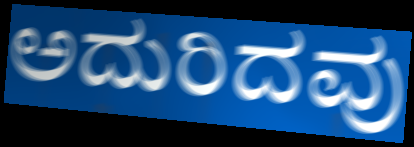
ಅದುರಿದವು